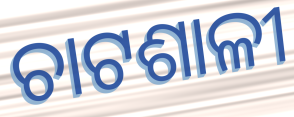
ଚାଟଶାଳୀ